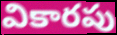
వికారపు